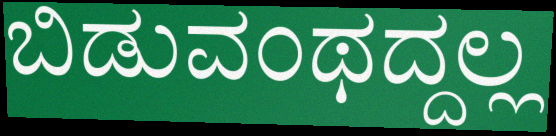
ಬಿಡುವಂಥದ್ದಲ್ಲ